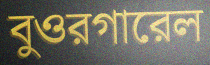
বুওরগারেল